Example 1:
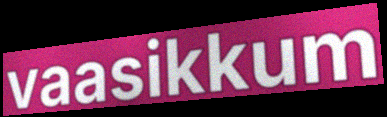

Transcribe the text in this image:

vaasikkum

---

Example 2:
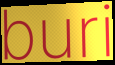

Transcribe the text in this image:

buri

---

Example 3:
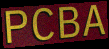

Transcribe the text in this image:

PCBA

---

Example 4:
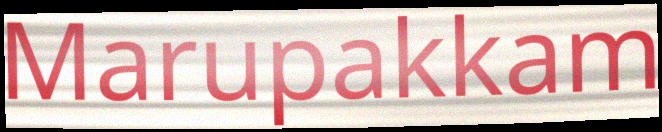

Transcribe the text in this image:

Marupakkam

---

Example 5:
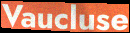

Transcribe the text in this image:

Vaucluse